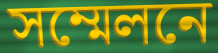
সম্মেলনে